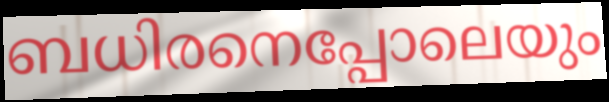
ബധിരനെപ്പോലെയും